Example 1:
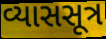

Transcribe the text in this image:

વ્યાસસૂત્ર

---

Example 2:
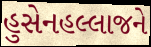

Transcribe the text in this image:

હુસેનહલ્લાજને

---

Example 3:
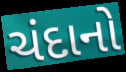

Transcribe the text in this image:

ચંદાનો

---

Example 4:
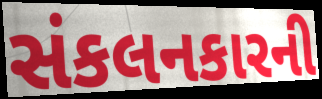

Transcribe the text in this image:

સંકલનકારની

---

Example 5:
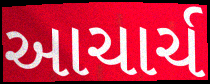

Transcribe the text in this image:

આચાર્ચ